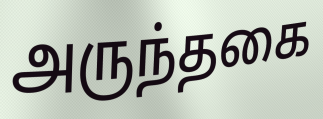
அருந்தகை